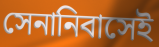
সেনানিবাসেই